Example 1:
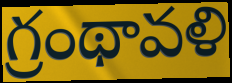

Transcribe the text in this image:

గ్రంథావళి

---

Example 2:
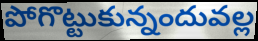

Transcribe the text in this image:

పోగొట్టుకున్నందువల్ల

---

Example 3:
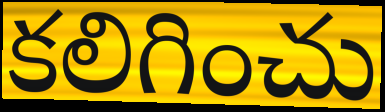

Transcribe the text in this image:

కలిగించు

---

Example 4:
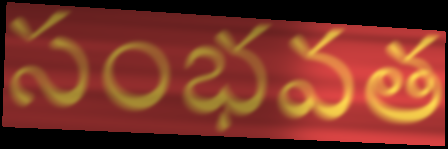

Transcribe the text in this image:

సంభవత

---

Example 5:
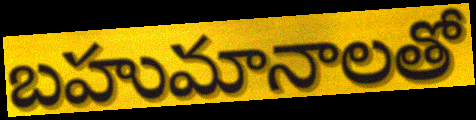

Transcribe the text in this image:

బహుమానాలతో